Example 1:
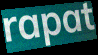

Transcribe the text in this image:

rapat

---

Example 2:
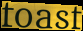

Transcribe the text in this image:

toast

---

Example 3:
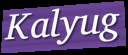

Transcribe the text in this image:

Kalyug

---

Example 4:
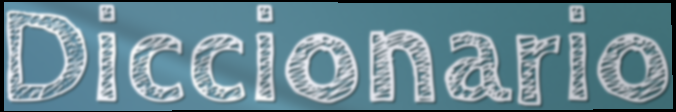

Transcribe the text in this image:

Diccionario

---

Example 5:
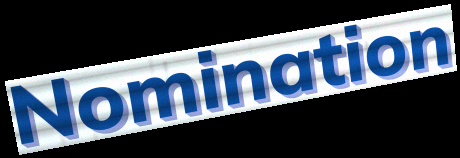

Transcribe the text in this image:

Nomination